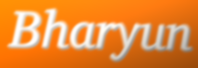
Bharyun